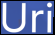
Uri